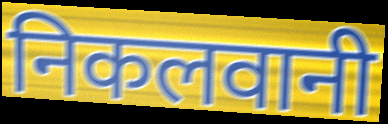
निकलवानी